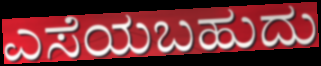
ಎಸೆಯಬಹುದು